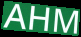
AHM